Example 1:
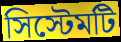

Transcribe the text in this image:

সিস্টেমটি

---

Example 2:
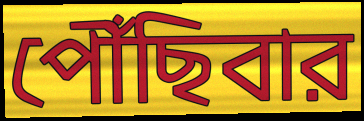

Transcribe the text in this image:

পৌঁছিবার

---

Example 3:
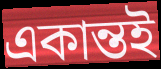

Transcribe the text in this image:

একান্তই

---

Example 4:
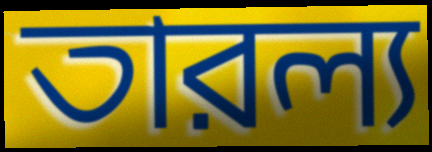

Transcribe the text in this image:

তারল্য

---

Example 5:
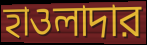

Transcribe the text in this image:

হাওলাদার